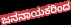
ಜನನಾಯಕರಿಂದ